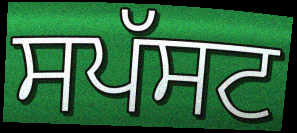
ਸਪੱਸਟ